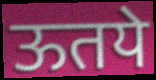
ऊतये